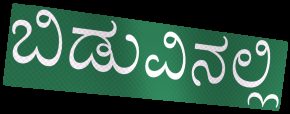
ಬಿಡುವಿನಲ್ಲಿ